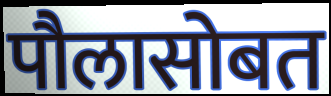
पौलासोबत